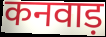
कनवाड़